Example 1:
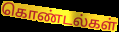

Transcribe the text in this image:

கொண்டல்கள்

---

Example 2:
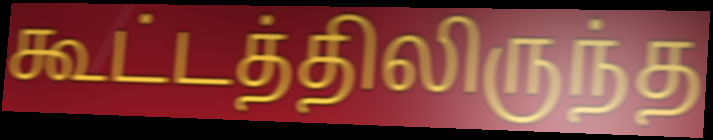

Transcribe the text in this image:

கூட்டத்திலிருந்த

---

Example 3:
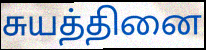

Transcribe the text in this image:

சுயத்தினை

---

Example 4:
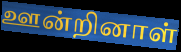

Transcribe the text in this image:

ஊன்றினாள்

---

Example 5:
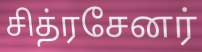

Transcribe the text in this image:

சித்ரசேனர்